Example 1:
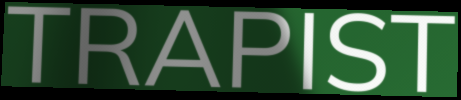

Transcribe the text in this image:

TRAPIST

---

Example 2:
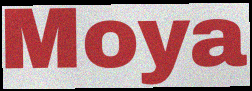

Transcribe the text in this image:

Moya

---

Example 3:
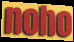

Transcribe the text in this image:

noho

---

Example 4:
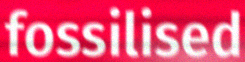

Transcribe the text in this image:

fossilised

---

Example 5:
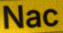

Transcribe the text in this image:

Nac